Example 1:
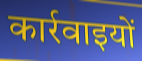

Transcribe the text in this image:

कार्रवाइयों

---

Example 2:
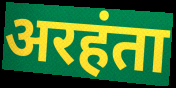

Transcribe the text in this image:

अरहंता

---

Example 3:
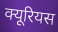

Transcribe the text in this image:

क्यूरियस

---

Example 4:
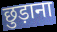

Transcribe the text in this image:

छुड़ाना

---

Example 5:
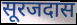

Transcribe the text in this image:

सूरजदास